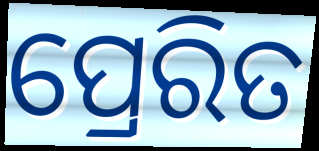
ପ୍ରେରିତ